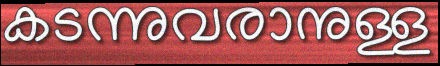
കടന്നുവരാനുള്ള